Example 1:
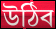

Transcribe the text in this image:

উঠিব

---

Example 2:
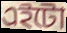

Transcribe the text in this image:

এইটো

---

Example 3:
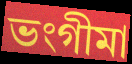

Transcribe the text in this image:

ভংগীমা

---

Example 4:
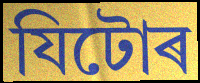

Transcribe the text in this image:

যিটোৰ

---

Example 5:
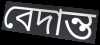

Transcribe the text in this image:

বেদান্ত